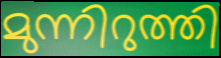
മുന്നിറുത്തി